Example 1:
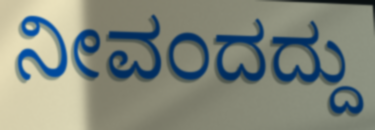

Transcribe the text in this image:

ನೀವಂದದ್ದು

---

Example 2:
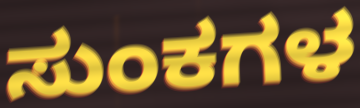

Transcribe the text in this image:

ಸುಂಕಗಳ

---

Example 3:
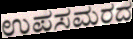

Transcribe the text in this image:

ಉಪಸಮರದ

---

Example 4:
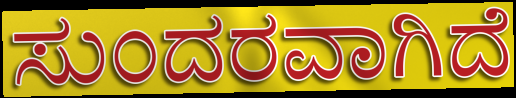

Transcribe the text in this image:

ಸುಂದರವಾಗಿದೆ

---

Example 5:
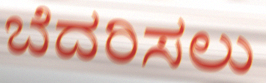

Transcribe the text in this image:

ಬೆದರಿಸಲು